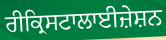
ਰੀਕ੍ਰਿਸਟਾਲਾਈਜ਼ੇਸ਼ਨ